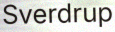
Sverdrup